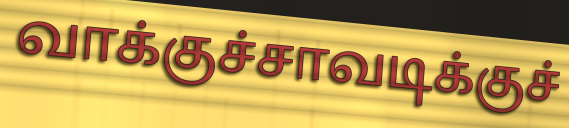
வாக்குச்சாவடிக்குச்